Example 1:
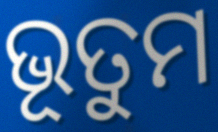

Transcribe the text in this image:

ଭୂତୁମ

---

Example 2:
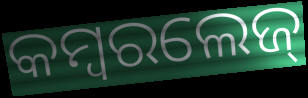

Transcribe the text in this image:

କମ୍ବରଲେଜ୍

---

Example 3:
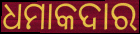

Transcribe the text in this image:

ଧମାକଦାର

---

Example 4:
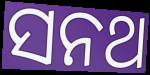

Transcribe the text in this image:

ସନଥ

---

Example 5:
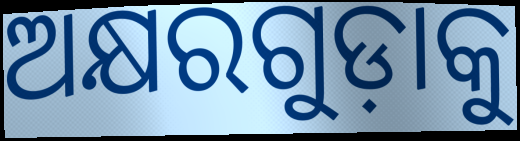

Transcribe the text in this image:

ଅକ୍ଷରଗୁଡ଼ାକୁ